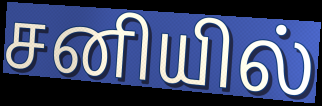
சனியில்